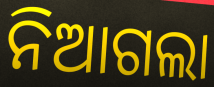
ନିଆଗଲା